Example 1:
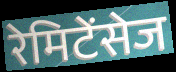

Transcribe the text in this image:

रेमिटेंसेज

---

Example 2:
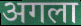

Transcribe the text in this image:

अगला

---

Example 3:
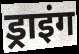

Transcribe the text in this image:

ड्राइंग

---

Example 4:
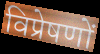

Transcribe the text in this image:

विप्रेषणों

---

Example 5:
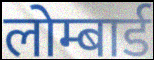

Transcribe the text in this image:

लोम्बार्ड